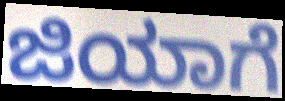
ಜಿಯಾಗೆ